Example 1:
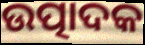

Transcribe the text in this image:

ଉତ୍ପାଦକ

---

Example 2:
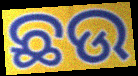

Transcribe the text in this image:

ଛଉ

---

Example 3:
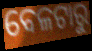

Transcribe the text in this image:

ବେଳଟାରୁ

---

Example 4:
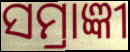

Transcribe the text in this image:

ସମ୍ରାଜ୍ଞୀ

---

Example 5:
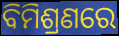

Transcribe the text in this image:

ବିମିଶ୍ରଣରେ